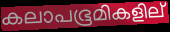
കലാപഭൂമികളില്